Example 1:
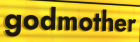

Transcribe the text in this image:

godmother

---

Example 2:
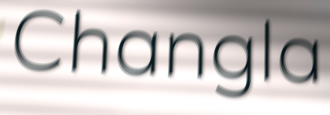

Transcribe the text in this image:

Changla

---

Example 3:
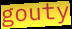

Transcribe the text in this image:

gouty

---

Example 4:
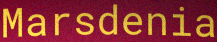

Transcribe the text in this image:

Marsdenia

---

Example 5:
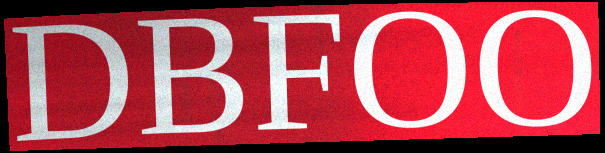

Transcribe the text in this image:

DBFOO